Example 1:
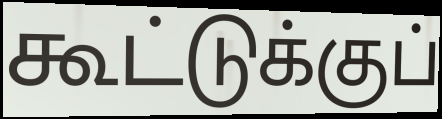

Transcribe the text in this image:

கூட்டுக்குப்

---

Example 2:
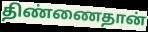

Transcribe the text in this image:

திண்ணைதான்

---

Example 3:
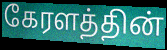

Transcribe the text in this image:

கேரளத்தின்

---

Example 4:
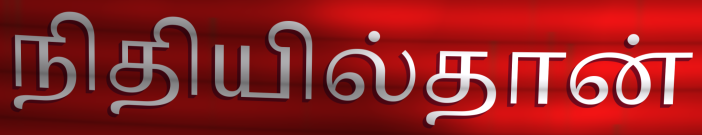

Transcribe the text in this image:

நிதியில்தான்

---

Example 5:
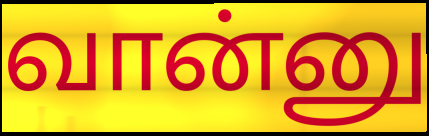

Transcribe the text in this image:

வான்னு